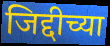
जिद्दीच्या